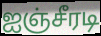
ஐஞ்சீரடி